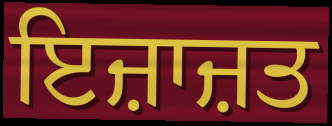
ਇਜ਼ਾਜ਼ਤ